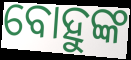
ବୋହୁଙ୍କ